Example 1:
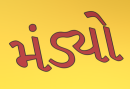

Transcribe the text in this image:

મંડ્યો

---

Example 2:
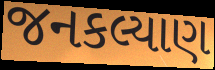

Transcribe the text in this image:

જનકલ્યાણ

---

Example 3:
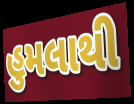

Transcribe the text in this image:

હુમલાથી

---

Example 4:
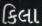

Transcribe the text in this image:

કિલા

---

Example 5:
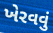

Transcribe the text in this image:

ખેરવવું